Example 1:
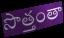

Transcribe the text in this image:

సొత్తంతా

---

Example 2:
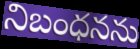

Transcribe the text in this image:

నిబంధనను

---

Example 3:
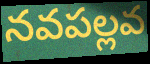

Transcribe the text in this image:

నవపల్లవ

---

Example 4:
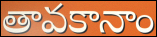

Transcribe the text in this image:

తావకానాం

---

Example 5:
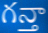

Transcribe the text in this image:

గన్తా